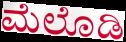
ಮೆಲೊಡಿ